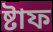
ষ্টাফ